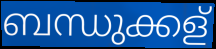
ബന്ധുക്കള്